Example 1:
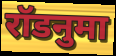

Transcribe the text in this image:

रॉडनुमा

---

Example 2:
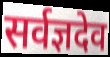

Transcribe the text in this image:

सर्वज्ञदेव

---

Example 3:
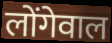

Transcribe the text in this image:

लोंगेवाल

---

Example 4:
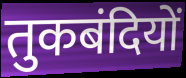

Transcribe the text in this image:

तुकबंदियों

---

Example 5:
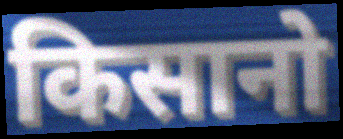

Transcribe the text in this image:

किसानो